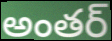
అంతర్